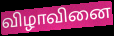
விழாவினை